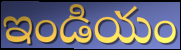
ఇండియం